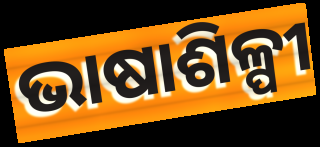
ଭାଷାଶିଳ୍ପୀ